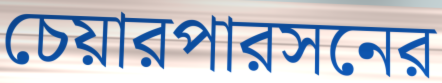
চেয়ারপারসনের